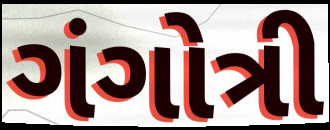
ગંગોત્રી